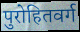
पुरोहितवर्ग